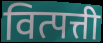
वित्पत्ती